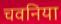
चवनिया